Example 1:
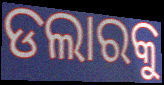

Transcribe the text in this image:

ଡଲାରକୁ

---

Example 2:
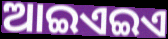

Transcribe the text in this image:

ଆଇଏଇଏ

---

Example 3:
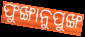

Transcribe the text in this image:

ଫୁଙ୍ଖାନୁପୁଙ୍ଖ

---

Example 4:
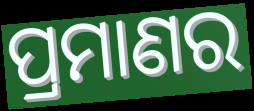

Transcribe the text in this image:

ପ୍ରମାଣର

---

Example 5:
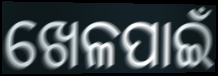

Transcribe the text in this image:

ଖେଳପାଇଁ